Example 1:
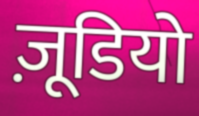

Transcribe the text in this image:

ज़ूडियो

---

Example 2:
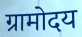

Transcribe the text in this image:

ग्रामोदय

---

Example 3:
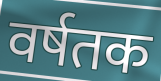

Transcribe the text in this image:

वर्षतक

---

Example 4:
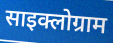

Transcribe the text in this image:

साइक्लोग्राम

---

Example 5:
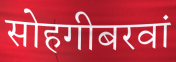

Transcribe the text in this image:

सोहगीबरवां